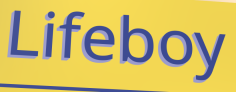
Lifeboy